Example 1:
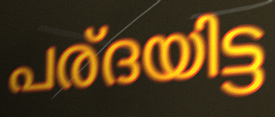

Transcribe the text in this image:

പര്ദയിട്ട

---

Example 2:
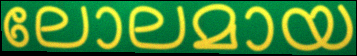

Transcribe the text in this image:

ലോലമായ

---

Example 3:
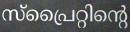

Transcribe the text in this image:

സ്പ്രൈറ്റിന്റെ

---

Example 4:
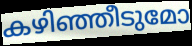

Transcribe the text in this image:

കഴിഞ്ഞീടുമോ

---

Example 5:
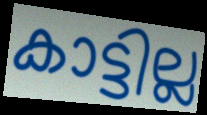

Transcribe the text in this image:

കാട്ടില്ല